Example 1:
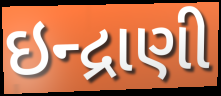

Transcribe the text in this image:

ઇન્દ્રાણી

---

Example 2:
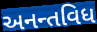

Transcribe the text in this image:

અનન્તવિધ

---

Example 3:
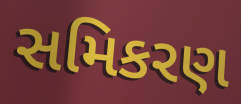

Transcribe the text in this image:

સમિકરણ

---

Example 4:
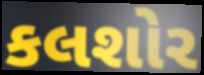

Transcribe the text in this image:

કલશોર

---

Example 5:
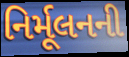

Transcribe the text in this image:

નિર્મૂલનની